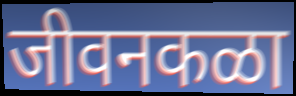
जीवनकळा